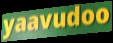
yaavudoo